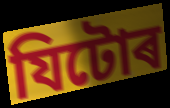
যিটোৰ